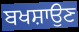
ਬਖਸ਼ਾਉਣ